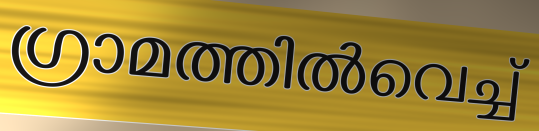
ഗ്രാമത്തിൽവെച്ച്